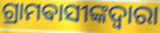
ଗ୍ରାମଵାସୀଙ୍କଦ୍ୱାରା